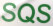
SQS